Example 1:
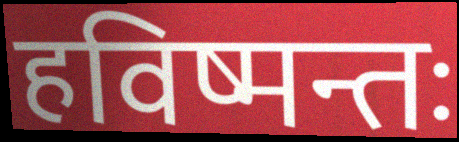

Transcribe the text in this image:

हविष्मन्तः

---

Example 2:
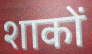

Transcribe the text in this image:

शाकों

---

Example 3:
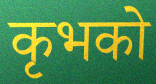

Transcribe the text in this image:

कृभको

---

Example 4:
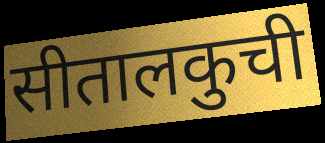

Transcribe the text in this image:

सीतालकुची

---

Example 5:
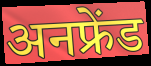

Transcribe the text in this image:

अनफ्रेंड